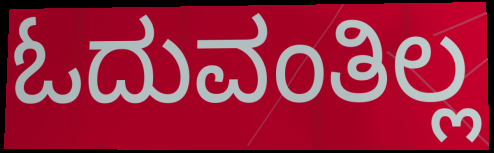
ಓದುವಂತಿಲ್ಲ